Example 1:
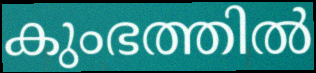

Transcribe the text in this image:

കുംഭത്തിൽ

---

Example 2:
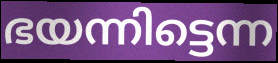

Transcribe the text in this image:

ഭയന്നിട്ടെന്ന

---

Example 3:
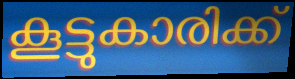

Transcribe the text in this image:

കൂട്ടുകാരിക്ക്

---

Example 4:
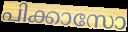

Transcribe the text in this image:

പിക്കാസോ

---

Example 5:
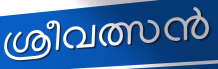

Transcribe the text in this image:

ശ്രീവത്സൻ